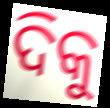
ଦିକୁ